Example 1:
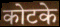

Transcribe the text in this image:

कोटके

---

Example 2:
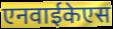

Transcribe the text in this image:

एनवाईकेएस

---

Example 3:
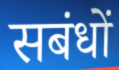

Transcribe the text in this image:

सबंधों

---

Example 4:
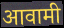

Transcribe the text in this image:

आवामी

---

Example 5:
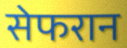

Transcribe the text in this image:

सेफरान